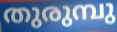
തുരുമ്പു